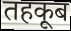
तहकूब